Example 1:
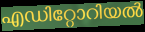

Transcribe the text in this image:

എഡിറ്റോറിയൽ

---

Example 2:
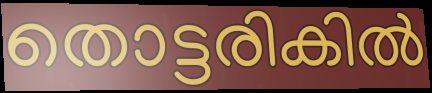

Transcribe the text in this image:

തൊട്ടരികിൽ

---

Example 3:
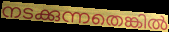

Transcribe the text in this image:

നടക്കുന്നതെങ്കിൽ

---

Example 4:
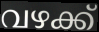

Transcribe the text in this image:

വഴക്ക്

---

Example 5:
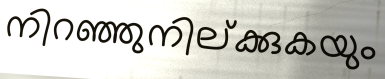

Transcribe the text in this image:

നിറഞ്ഞുനില്ക്കുകയും